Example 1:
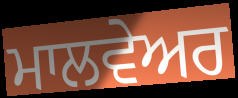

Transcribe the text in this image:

ਮਾਲਵੇਅਰ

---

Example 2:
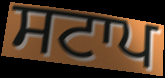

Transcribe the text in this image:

ਸਟਾਪ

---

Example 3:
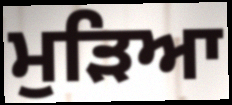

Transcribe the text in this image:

ਮੁੜਿਆ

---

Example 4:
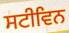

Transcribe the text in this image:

ਸਟੀਵਿਨ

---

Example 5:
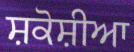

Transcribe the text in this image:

ਸ਼ਕੋਸ਼ੀਆ